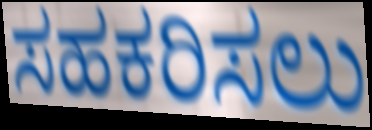
ಸಹಕರಿಸಲು